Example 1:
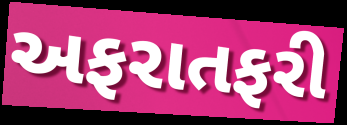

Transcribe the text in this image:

અફરાતફરી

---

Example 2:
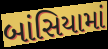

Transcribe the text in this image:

બાંસિયામાં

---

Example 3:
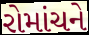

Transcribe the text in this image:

રોમાંચને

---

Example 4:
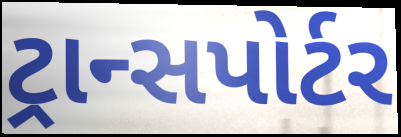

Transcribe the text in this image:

ટ્રાન્સપોર્ટર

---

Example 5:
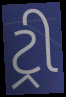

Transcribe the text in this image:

ટ્રી